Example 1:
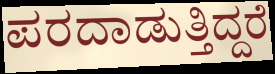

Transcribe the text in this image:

ಪರದಾಡುತ್ತಿದ್ದರೆ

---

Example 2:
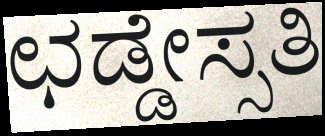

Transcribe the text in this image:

ಛಡ್ಡೇಸ್ಸತಿ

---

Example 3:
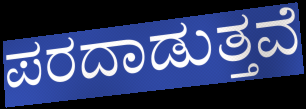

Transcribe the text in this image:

ಪರದಾಡುತ್ತವೆ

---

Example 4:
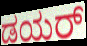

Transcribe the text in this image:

ಡಯರ್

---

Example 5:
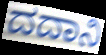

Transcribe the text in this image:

ದದಾನಿ